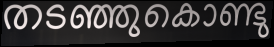
തടഞ്ഞുകൊണ്ടു